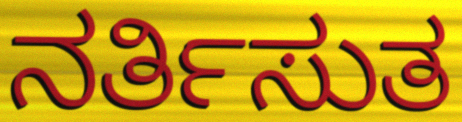
ನರ್ತಿಸುತ